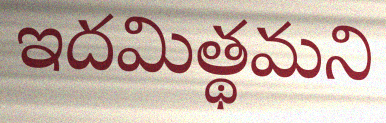
ఇదమిత్థమని